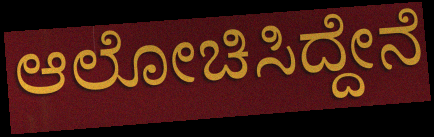
ಆಲೋಚಿಸಿದ್ದೇನೆ